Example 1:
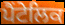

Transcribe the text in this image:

ਪੈਂਟੇਲਿਕ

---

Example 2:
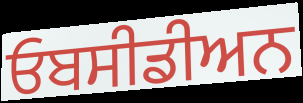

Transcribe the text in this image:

ਓਬਸੀਡੀਅਨ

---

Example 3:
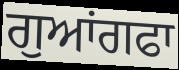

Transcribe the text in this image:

ਗੁਆਂਗਫਾ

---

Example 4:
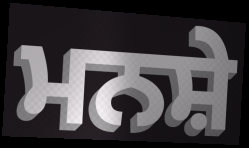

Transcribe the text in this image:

ਮਨਸ਼ੇ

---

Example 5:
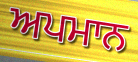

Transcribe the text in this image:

ਅਪਮਾਨ